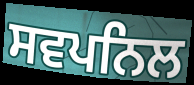
ਸਵਪਨਿਲ